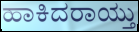
ಹಾಕಿದರಾಯ್ತು